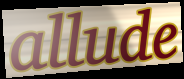
allude